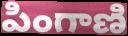
పింగాణి